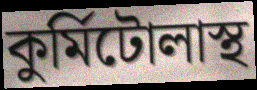
কুর্মিটোলাস্থ